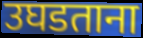
उघडताना